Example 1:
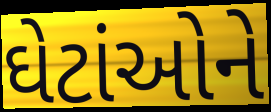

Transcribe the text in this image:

ઘેટાંઓને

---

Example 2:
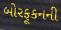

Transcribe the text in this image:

બોરફૂકનની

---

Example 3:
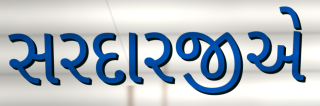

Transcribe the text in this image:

સરદારજીએ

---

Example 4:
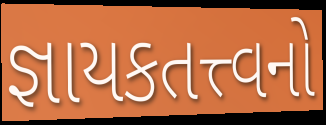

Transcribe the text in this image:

જ્ઞાયકતત્ત્વનો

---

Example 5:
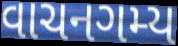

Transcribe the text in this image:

વાચનગમ્ય